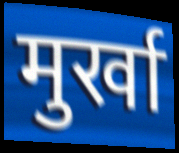
मुर्खा